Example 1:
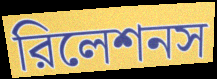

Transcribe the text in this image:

রিলেশনস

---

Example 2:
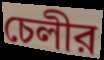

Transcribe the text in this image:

চেলীর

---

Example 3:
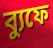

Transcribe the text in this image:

ব্যুফে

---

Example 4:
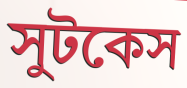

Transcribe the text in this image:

সুটকেস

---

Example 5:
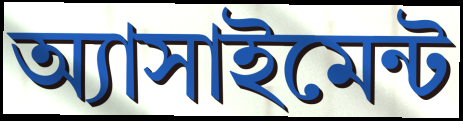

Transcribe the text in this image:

অ্যাসাইমেন্ট